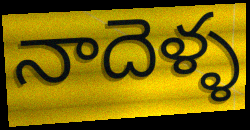
నాదెళ్ళ